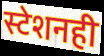
स्टेशनही